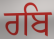
ਰਬਿ